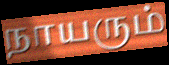
நாயரும்